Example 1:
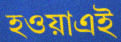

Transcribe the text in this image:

হওয়াএই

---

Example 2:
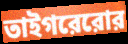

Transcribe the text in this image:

তাইগরেরোর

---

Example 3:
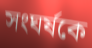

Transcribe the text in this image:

সংঘর্ষকে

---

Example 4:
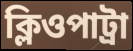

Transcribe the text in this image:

ক্লিওপাট্রা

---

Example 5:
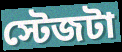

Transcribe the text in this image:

স্টেজটা